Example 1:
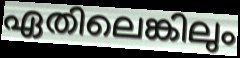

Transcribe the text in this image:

ഏതിലെങ്കിലും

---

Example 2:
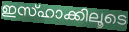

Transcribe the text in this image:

ഇസ്ഹാക്കിലൂടെ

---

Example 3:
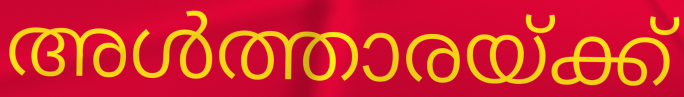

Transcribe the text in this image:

അൾത്താരയ്ക്ക്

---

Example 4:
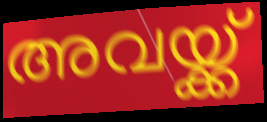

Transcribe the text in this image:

അവയ്ക്ക്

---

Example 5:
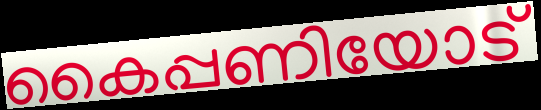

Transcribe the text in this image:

കൈപ്പണിയോട്